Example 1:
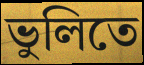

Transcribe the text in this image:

ভুলিতে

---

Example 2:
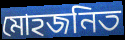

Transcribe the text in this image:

মোহজনিত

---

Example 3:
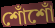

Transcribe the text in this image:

শোঁশোঁ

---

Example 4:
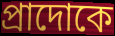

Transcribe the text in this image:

প্রাদোকে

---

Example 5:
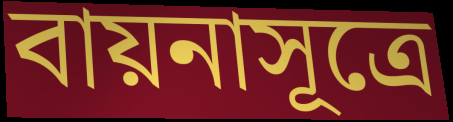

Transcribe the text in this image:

বায়নাসূত্রে